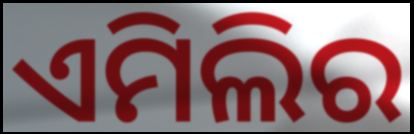
ଏମିଲିର